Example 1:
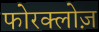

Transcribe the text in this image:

फोरक्लोज़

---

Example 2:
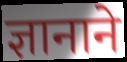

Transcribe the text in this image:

ज्ञानाने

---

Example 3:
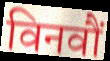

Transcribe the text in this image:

विनवौं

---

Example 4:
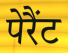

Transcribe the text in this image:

पेरैंट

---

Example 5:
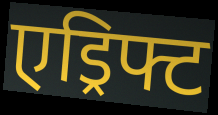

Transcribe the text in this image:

एड्रिफ्ट